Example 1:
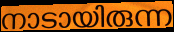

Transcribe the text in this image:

നാടായിരുന്ന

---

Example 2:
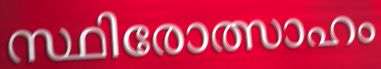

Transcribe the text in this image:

സ്ഥിരോത്സാഹം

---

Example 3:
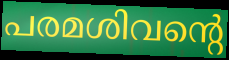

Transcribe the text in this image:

പരമശിവന്റെ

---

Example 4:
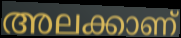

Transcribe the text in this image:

അലക്കാണ്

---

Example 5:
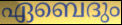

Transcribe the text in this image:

ഏബെദും